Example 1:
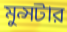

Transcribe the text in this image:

মুন্সটার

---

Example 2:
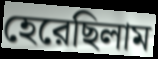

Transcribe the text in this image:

হেরেছিলাম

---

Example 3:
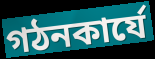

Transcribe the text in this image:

গঠনকার্যে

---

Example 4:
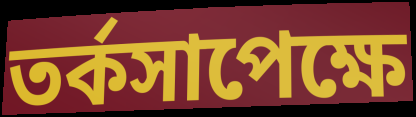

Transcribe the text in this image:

তর্কসাপেক্ষে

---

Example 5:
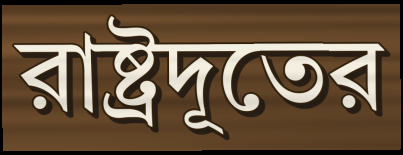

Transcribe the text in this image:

রাষ্ট্রদূতের